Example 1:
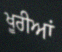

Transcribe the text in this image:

ਖੂਰੀਆਂ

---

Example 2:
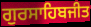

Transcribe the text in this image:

ਗੁਰਸਾਹਿਬਜੀਤ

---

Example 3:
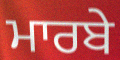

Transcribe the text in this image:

ਮਾਰਬੇ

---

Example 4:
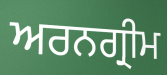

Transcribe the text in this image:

ਅਰਨਗ੍ਰੀਮ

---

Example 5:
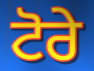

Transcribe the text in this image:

ਟੋਰੇ